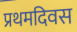
प्रथमदिवस